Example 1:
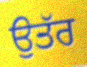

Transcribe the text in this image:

ਉਤੱਰ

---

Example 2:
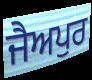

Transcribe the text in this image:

ਜੈਅਪੁਰ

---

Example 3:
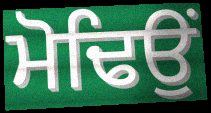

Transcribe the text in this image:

ਮੋਢਿਉਂ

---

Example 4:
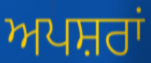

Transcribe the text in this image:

ਅਪਸ਼ਰਾਂ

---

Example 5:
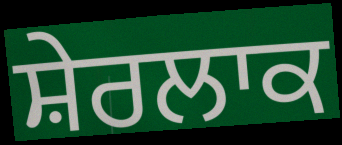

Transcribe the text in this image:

ਸ਼ੇਰਲਾਕ